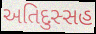
અતિદુસ્સહ